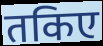
तकिए